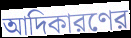
আদিকারণের